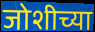
जोशीच्या